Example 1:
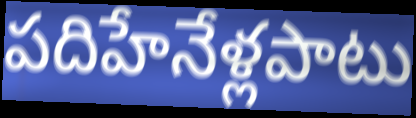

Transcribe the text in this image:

పదిహేనేళ్లపాటు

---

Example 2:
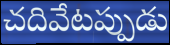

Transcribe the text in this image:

చదివేటప్పుడు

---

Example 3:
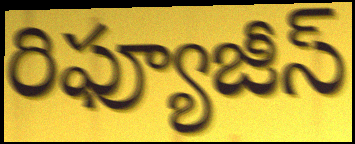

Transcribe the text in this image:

రిఫ్యూజీస్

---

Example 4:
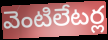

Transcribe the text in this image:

వెంటిలేటర్ల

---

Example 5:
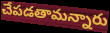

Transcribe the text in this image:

చేపడతామన్నారు